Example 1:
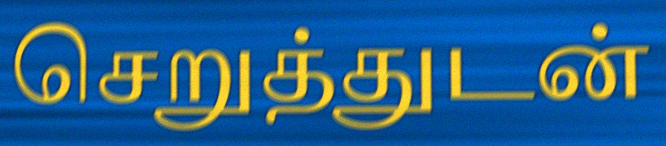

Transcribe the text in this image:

செறுத்துடன்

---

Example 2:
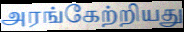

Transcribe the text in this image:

அரங்கேற்றியது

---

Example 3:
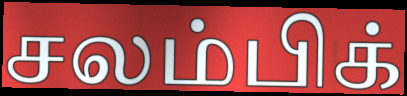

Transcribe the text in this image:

சலம்பிக்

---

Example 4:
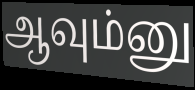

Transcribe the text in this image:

ஆவும்னு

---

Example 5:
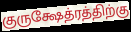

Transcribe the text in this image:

குருக்ஷேத்ரத்திற்கு